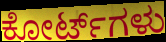
ಕೋರ್ಟ್‌ಗಳು